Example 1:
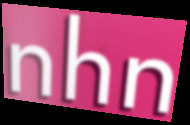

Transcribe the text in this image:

nhn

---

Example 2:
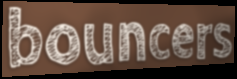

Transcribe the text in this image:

bouncers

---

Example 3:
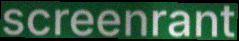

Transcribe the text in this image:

screenrant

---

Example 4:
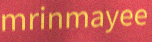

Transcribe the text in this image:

mrinmayee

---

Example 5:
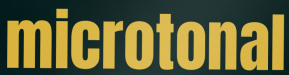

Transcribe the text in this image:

microtonal